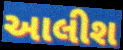
આલીશ